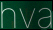
hva